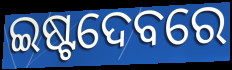
ଇଷ୍ଟଦେବରେ